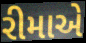
રીમાએ